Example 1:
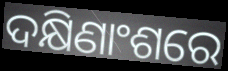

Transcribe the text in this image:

ଦକ୍ଷିଣାଂଶରେ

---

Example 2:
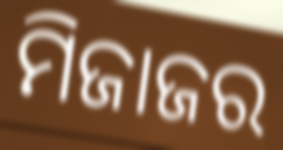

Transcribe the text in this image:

ମିଜାଜର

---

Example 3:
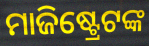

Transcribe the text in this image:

ମାଜିଷ୍ଟ୍ରେଟଙ୍କ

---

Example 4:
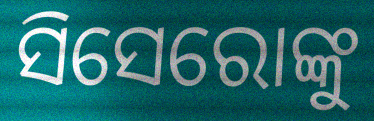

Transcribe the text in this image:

ସିସେରୋଙ୍କୁ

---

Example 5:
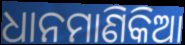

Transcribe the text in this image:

ଧାନମାଣିକିଆ